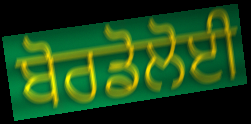
ਬੋਰਡੋਲੋਈ